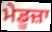
ਮੇਡੂਜ਼ਾ